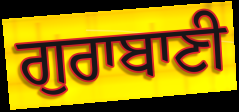
ਗੁਰਾਬਾਣੀ